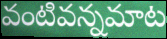
వంటివన్నమాట